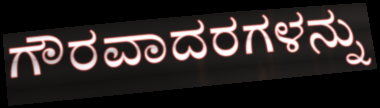
ಗೌರವಾದರಗಳನ್ನು